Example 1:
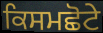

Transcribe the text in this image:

ਕਿਸਮਛੋਟੇ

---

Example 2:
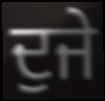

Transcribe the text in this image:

ਦੁਜੇ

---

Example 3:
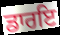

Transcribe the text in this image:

ਡਾਰਇ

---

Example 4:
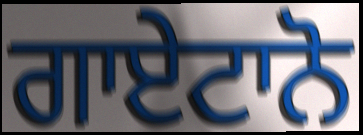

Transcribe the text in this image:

ਗਾਏਟਾਨੋ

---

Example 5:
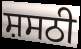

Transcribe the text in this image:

ਸ਼ਸਠੀ